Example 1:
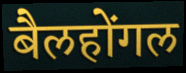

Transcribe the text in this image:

बैलहोंगल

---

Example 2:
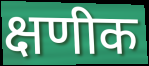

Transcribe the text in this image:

क्षणीक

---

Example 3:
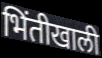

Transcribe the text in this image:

भिंतीखाली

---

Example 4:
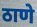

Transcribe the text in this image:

ठाणे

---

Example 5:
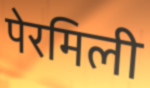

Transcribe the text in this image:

पेरमिली